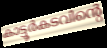
കാട്ടൂർകടവിന്റെ